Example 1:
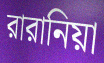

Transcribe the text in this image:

রারানিয়া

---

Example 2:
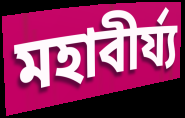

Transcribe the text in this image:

মহাবীর্য্য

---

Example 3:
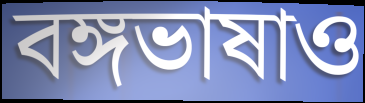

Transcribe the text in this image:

বঙ্গভাষাও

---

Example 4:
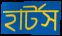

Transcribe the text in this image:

হার্টস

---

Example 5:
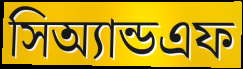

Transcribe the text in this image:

সিঅ্যান্ডএফ